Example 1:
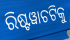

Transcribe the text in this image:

ରିଷ୍ଟୱାଚଟିକୁ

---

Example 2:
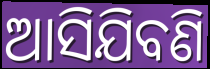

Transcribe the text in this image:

ଆସିଯିବଣି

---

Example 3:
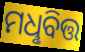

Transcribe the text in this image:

ମଧୢବିତ୍ତ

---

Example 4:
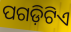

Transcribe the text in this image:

ପଗଡ଼ିଟିଏ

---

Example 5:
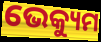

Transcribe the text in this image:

ଭେକ୍ୟୁମ